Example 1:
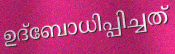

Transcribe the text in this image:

ഉദ്ബോധിപ്പിച്ചത്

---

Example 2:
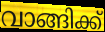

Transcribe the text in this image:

വാങ്ങിക്ക്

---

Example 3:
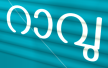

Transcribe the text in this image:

റാവു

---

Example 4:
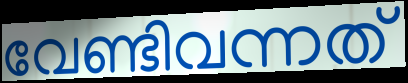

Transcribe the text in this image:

വേണ്ടിവന്നത്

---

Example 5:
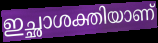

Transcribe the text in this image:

ഇച്ഛാശക്തിയാണ്